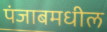
पंजाबमधील